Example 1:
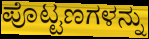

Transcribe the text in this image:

ಪೊಟ್ಟಣಗಳನ್ನು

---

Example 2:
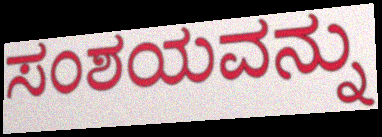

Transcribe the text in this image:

ಸಂಶಯವನ್ನು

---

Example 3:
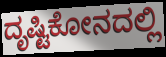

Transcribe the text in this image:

ದೃಷ್ಟಿಕೋನದಲ್ಲಿ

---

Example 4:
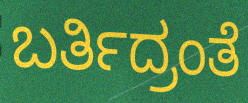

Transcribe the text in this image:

ಬರ್ತಿದ್ರಂತೆ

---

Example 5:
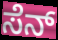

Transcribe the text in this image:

ಸೆನ್